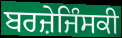
ਬਰਜ਼ੇਜਿੰਸਕੀ